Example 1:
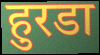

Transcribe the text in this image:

हुरडा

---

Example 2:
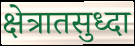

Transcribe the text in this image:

क्षेत्रातसुध्दा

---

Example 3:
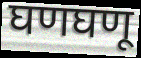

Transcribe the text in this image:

घणघणू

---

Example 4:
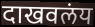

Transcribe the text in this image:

दाखवलंय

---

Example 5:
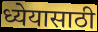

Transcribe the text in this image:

ध्येयासाठी